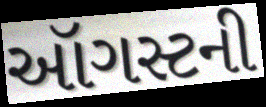
ઑગસ્ટની